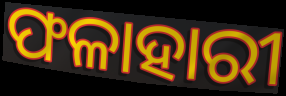
ଫଳାହାରୀ